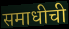
समाधीची